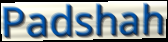
Padshah